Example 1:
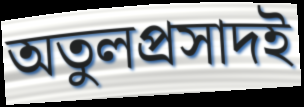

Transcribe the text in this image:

অতুলপ্রসাদই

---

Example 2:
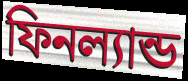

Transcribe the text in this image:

ফিনল্যান্ড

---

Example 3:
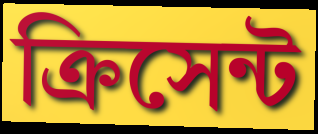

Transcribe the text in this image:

ক্রিসেন্ট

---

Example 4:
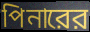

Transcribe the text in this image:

পিনারের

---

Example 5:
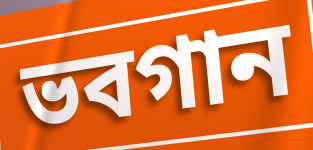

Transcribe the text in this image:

ভবগান